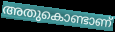
അതുകൊണ്ടാണ്